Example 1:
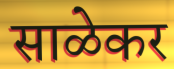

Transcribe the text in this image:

साळेकर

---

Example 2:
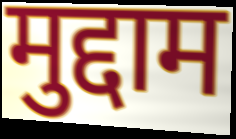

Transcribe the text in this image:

मुद्दाम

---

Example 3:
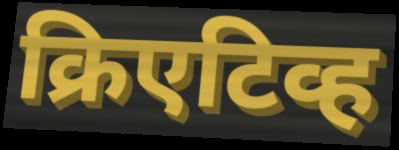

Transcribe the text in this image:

क्रिएटिव्ह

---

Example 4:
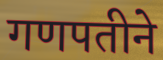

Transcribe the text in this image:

गणपतीने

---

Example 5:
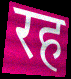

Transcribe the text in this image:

रह